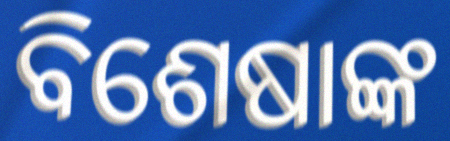
ବିଶେଷାଙ୍କ